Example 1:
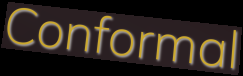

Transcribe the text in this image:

Conformal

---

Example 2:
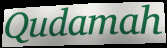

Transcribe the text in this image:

Qudamah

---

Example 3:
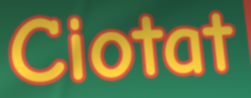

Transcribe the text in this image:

Ciotat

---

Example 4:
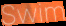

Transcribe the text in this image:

Swim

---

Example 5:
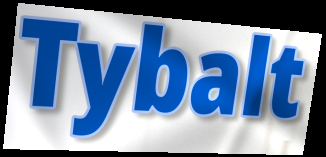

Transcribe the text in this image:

Tybalt